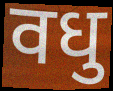
वधु